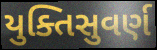
યુક્તિસુવર્ણ